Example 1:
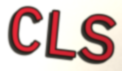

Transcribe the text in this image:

CLS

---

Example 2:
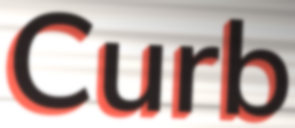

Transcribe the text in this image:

Curb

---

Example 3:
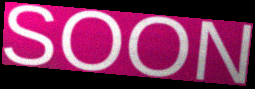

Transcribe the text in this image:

SOON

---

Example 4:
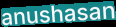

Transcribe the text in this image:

anushasan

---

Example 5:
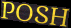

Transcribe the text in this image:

POSH